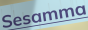
Sesamma